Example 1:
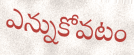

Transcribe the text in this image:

ఎన్నుకోవటం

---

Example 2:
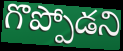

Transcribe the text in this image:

గొప్పోడని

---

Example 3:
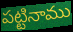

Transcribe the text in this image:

పట్టినాము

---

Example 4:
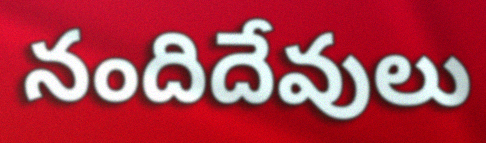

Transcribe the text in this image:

నందిదేవులు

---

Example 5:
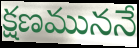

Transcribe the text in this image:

క్షణముననే